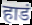
हाडं